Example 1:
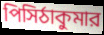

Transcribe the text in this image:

পিসিঠাকুমার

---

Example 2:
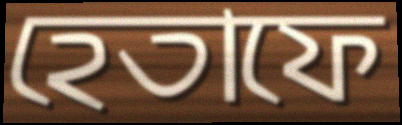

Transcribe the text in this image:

হেতাফে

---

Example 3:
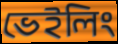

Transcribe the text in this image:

ভেইলিং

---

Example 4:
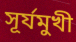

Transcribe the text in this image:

সূর্যমুখী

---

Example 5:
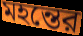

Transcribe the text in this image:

মহন্তের